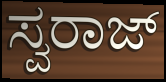
ಸ್ವರಾಜ್